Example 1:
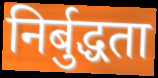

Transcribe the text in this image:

निर्बुद्धता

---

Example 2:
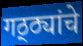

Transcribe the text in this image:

गठ्ठ्यांचे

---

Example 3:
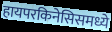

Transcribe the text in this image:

हायपरकिनेसिसमध्ये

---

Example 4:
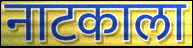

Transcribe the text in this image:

नाटकाला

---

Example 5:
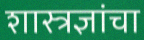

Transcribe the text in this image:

शास्त्रज्ञांचा